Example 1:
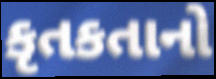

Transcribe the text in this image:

કૃતકતાનો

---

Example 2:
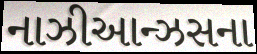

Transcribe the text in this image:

નાઝીઆન્ઝસના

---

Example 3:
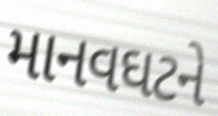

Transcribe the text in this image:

માનવઘટને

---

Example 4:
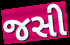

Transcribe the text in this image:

જસી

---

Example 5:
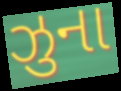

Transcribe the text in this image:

ઝુના